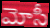
మోసీ